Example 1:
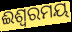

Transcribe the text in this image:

ଈଶ୍ଵରମୟ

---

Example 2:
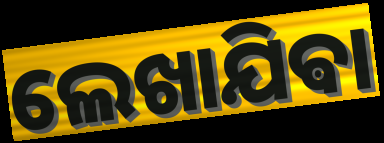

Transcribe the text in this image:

ଲେଖାଯିଵା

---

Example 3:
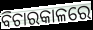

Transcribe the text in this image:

ବିଚାରକାଳରେ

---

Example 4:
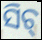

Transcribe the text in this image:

ସିଚ୍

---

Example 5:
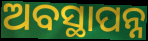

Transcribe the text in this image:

ଅବସ୍ଥାପନ୍ନ